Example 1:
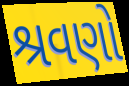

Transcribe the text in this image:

શ્રવણો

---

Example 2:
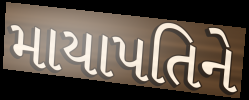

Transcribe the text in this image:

માયાપતિને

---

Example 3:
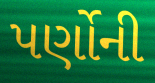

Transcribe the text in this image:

પર્ણોની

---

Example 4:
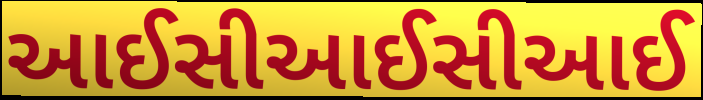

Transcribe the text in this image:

આઈસીઆઈસીઆઈ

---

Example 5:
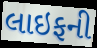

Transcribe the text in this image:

લાઇફની